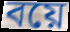
বয়ে